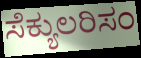
ಸೆಕ್ಯುಲರಿಸಂ